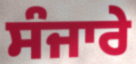
ਸੰਜਾਰੇ